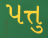
પત્તુ